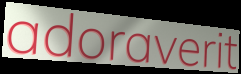
adoraverit